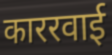
काररवाई